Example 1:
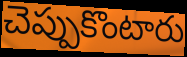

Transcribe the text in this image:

చెప్పుకొంటారు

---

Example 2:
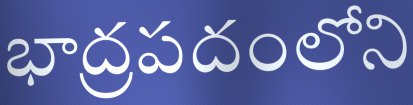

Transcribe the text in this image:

భాద్రపదంలోని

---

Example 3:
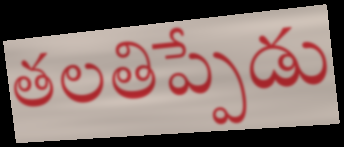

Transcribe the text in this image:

తలతిప్పేడు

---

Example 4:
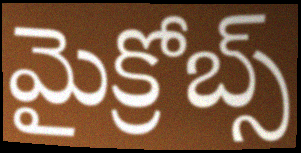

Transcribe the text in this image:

మైక్రోబ్స్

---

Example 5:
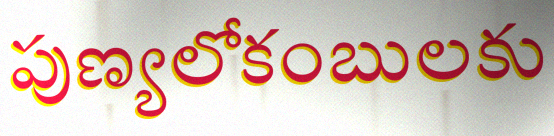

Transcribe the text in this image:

పుణ్యలోకంబులకు